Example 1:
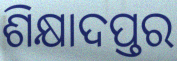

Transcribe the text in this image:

ଶିକ୍ଷାଦପ୍ତର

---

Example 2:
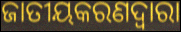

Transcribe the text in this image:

ଜାତୀୟକରଣଦ୍ୱାରା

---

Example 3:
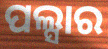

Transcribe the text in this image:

ପଲ୍ସାର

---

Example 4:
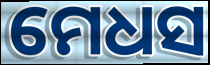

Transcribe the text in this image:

ମେଧସ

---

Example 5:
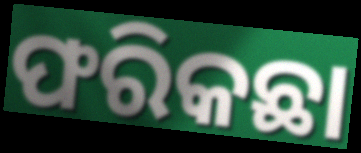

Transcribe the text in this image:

ଫରିକଛା